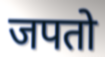
जपतो